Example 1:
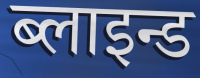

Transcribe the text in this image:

ब्लाइन्ड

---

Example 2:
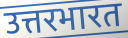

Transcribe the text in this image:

उत्तरभारत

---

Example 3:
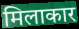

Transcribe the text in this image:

मिलाकार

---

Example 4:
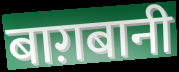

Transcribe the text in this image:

बाग़बानी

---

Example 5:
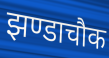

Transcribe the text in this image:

झण्डाचौक